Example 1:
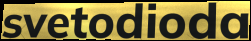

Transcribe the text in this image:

svetodioda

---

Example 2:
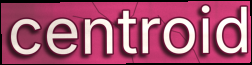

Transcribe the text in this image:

centroid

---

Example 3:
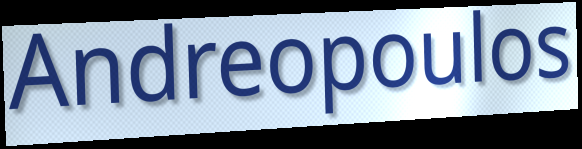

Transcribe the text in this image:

Andreopoulos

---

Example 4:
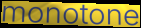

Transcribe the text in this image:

monotone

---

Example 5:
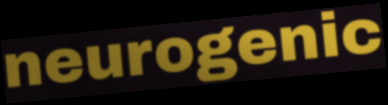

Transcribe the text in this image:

neurogenic